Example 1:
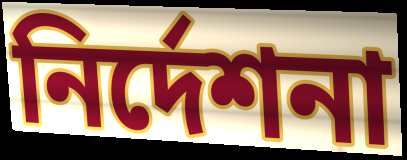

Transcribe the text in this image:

নির্দেশনা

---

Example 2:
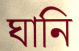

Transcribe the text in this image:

ঘানি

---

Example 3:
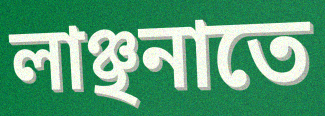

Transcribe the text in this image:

লাঞ্ছনাতে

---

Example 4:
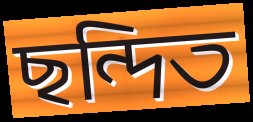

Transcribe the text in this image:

ছন্দিত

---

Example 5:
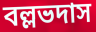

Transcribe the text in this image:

বল্লভদাস